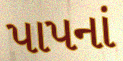
પાપનાં